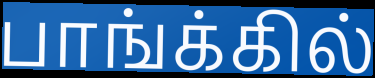
பாங்க்கில்